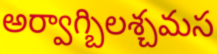
అర్వాగ్బిలశ్చమస